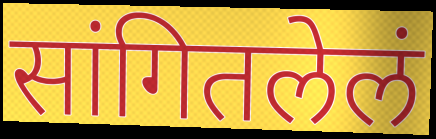
सांगितलेलं